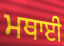
ਮਥਾਈ